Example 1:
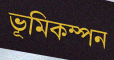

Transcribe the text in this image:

ভূমিকম্পন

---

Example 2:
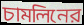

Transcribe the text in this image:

চামলিনের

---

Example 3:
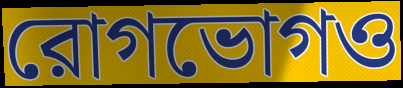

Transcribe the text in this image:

রোগভোগও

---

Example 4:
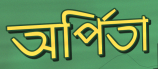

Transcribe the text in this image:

অর্পিতা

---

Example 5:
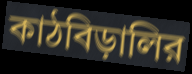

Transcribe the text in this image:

কাঠবিড়ালির